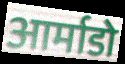
आर्माडो